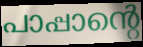
പാപ്പാന്റെ